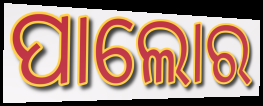
ପାଲୋର